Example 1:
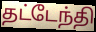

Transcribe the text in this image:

தட்டேந்தி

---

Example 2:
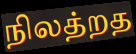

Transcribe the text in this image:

நிலத்றத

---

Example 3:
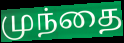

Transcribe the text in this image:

முந்தை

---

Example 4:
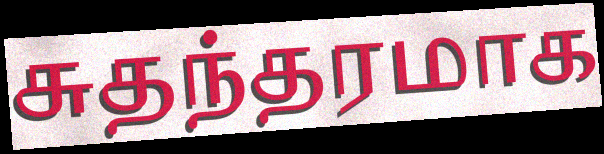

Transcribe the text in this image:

சுதந்தரமாக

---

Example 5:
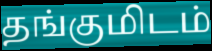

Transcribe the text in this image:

தங்குமிடம்